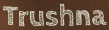
Trushna